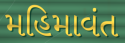
મહિમાવંત